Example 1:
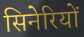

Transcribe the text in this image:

सिनेरियों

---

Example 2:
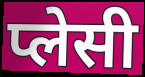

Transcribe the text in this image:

प्लेसी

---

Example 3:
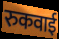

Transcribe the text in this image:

रुकवाई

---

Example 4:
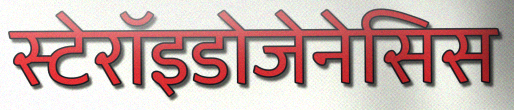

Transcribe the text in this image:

स्टेरॉइडोजेनेसिस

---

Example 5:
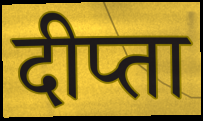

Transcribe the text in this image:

दीप्ता